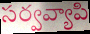
సర్వవ్యాపి